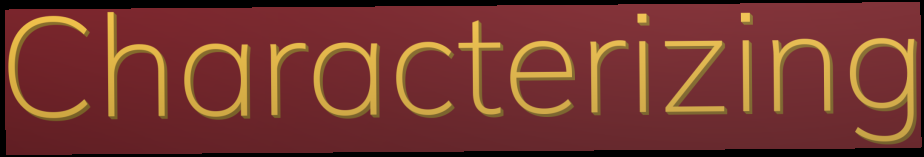
Characterizing